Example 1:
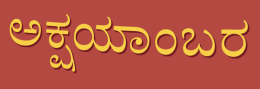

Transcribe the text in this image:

ಅಕ್ಷಯಾಂಬರ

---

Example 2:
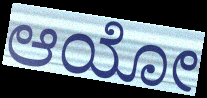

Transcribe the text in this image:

ಆಯೋ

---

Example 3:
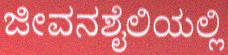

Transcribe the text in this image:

ಜೀವನಶೈಲಿಯಲ್ಲಿ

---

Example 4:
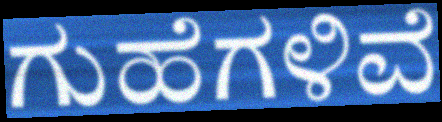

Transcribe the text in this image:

ಗುಹೆಗಳಿವೆ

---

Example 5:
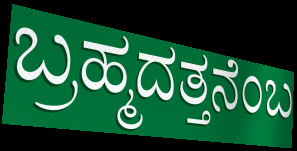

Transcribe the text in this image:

ಬ್ರಹ್ಮದತ್ತನೆಂಬ